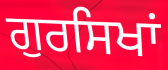
ਗੁਰਸਿਖਾਂ